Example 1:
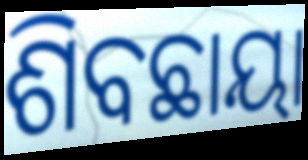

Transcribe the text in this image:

ଶିବଛାୟା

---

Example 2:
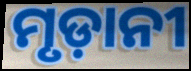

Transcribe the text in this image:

ମୃଡ଼ାନୀ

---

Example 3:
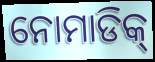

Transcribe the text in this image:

ନୋମାଡିକ୍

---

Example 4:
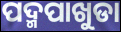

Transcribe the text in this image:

ପଦ୍ମପାଖୁଡା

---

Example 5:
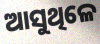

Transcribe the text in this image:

ଆସୁଥିଳେ